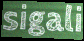
sigali